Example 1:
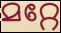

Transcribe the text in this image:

മറ്റേ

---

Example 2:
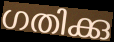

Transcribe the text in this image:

ഗതിക്കു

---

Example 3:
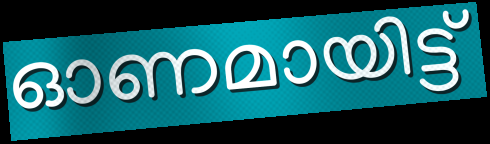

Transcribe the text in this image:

ഓണമായിട്ട്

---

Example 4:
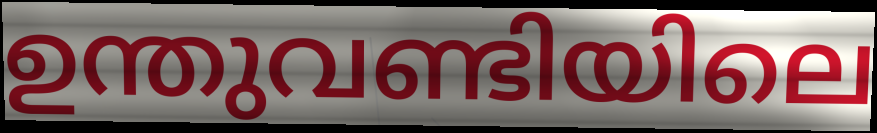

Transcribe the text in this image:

ഉന്തുവണ്ടിയിലെ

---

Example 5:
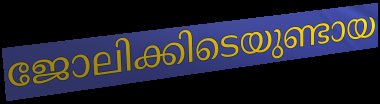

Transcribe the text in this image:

ജോലിക്കിടെയുണ്ടായ